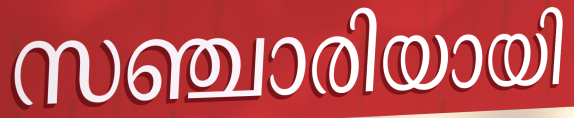
സഞ്ചാരിയായി